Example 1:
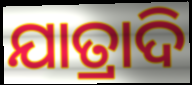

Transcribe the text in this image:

ଯାତ୍ରାଦି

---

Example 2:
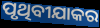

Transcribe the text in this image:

ପୃଥିବୀଯାକର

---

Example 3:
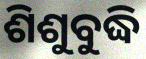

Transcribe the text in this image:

ଶିଶୁବୁଦ୍ଧି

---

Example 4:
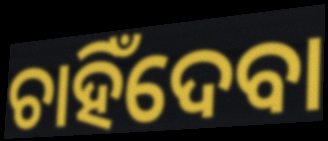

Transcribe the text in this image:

ଚାହିଁଦେବା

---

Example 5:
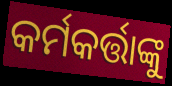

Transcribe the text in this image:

କର୍ମକର୍ତ୍ତାଙ୍କୁ